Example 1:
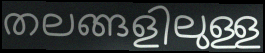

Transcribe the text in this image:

തലങ്ങളിലുള്ള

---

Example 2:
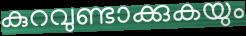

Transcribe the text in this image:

കുറവുണ്ടാക്കുകയും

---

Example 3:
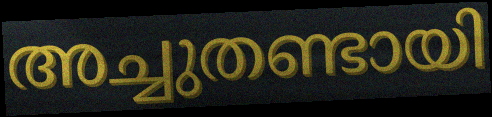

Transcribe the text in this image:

അച്ചുതണ്ടായി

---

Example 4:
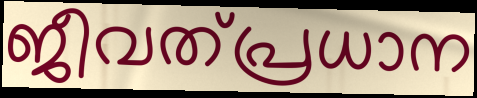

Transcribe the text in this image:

ജീവത്പ്രധാന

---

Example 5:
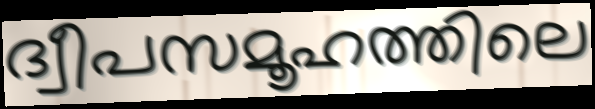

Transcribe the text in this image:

ദ്വീപസമൂഹത്തിലെ